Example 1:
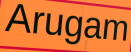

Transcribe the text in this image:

Arugam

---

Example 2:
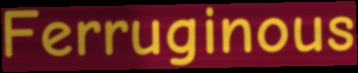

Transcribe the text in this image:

Ferruginous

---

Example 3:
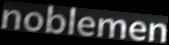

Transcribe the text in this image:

noblemen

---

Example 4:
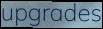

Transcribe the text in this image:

upgrades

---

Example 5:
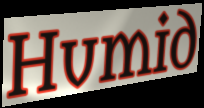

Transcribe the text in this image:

Humid